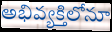
అభివ్యక్తిలోనూ